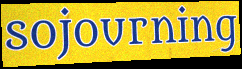
sojourning